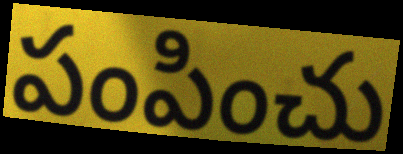
పంపించు